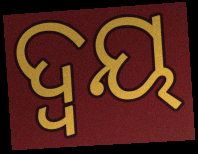
ଦ୍ୱୟ